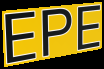
EPE